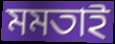
মমতাই